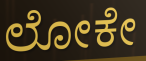
ಲೋಕೇ